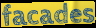
facades